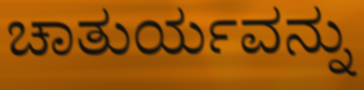
ಚಾತುರ್ಯವನ್ನು